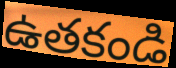
ఉతకండి